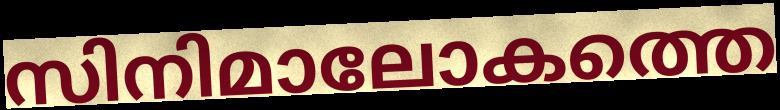
സിനിമാലോകത്തെ